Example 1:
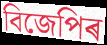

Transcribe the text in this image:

বিজেপিৰ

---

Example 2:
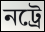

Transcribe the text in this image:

নট্ৰে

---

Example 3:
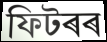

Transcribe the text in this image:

ফিটৰৰ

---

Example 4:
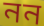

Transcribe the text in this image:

নন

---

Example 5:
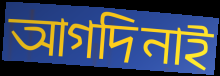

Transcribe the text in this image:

আগদিনাই